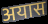
अयास